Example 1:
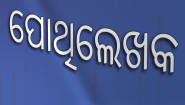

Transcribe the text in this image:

ପୋଥିଲେଖକ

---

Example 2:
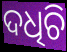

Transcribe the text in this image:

ଦଧିଚି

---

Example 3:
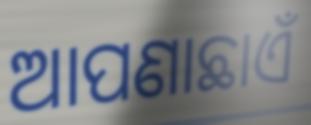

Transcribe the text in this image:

ଆପଣାଛାଏଁ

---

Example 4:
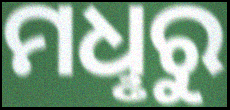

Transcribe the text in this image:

ମଧୢରୁ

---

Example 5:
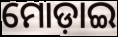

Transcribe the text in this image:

ମୋଡ଼ାଇ